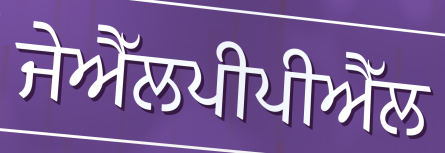
ਜੇਐੱਲਪੀਪੀਐੱਲ